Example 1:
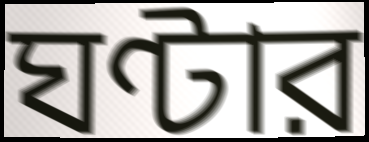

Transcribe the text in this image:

ঘণ্টার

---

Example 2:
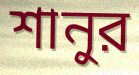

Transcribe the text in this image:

শানুর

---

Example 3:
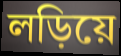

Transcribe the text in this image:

লড়িয়ে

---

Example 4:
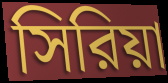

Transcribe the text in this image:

সিরিয়া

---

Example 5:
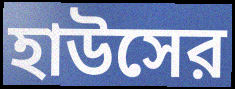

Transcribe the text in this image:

হাউসের